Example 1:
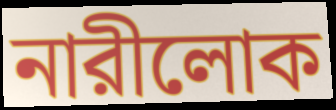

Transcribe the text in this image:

নারীলোক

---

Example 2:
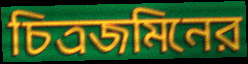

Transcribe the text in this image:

চিত্রজমিনের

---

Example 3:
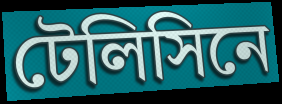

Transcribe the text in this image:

টেলিসিনে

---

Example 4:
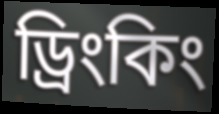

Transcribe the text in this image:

ড্রিংকিং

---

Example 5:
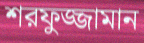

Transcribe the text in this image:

শরফুজ্জামান